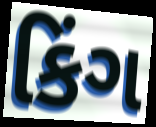
કિંગ